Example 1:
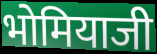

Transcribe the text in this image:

भोमियाजी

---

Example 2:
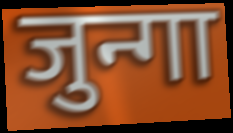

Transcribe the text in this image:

जुन्गा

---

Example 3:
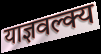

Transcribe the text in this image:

याज्ञवल्क्य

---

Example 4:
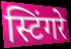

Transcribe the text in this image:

स्टिंगरे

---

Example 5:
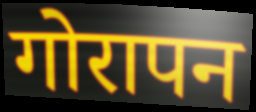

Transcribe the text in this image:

गोरापन